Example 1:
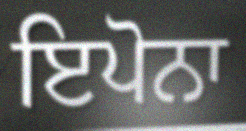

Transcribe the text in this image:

ਇਪੋਨਾ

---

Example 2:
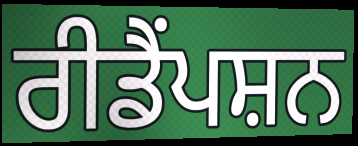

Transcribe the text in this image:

ਰੀਡੈਂਪਸ਼ਨ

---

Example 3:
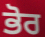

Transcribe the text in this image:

ਭੋਰ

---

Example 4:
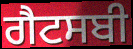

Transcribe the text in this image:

ਗੈਟਸਬੀ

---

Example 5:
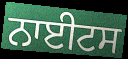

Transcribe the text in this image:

ਨਾਈਟਸ